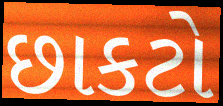
છાકટો